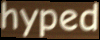
hyped